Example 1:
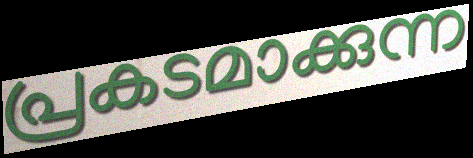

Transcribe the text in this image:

പ്രകടമാക്കുന്ന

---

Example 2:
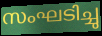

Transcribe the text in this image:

സംഘടിച്ചു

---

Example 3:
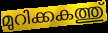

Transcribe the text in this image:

മുറിക്കകത്തു്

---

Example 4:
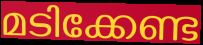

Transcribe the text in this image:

മടിക്കേണ്ട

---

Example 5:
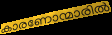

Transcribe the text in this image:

കാരണോന്മാരിൽ